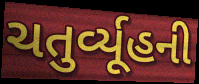
ચતુર્વ્યૂહની